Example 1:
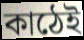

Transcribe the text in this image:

কাঠেই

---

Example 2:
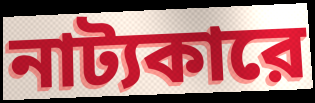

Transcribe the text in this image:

নাট্যকারে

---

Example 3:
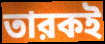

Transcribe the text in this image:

তারকই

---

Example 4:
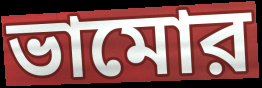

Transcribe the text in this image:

ভামোর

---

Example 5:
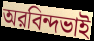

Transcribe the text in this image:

অরবিন্দভাই